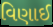
વિણાઈ